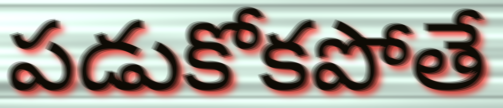
పడుకోకపోతే